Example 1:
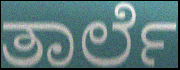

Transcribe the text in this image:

ತಾರ್ಲೆ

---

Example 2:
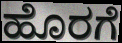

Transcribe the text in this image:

ಹೊರಗೆ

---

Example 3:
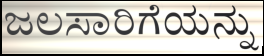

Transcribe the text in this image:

ಜಲಸಾರಿಗೆಯನ್ನು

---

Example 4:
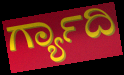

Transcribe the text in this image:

ರ್ಗ್ಯಾದಿ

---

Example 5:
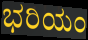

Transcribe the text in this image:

ಭರಿಯಂ